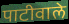
पाटीवाले